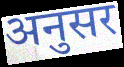
अनुसर